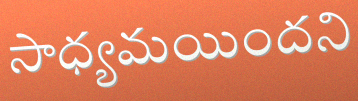
సాధ్యమయిందని